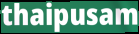
thaipusam